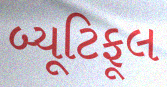
બ્યૂટિફૂલ